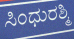
ಸಿಂಧುರಶ್ಮಿ